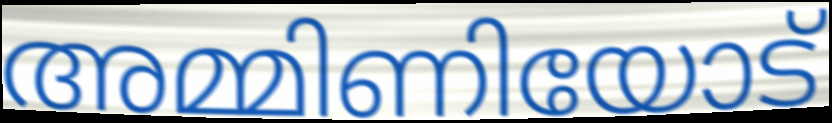
അമ്മിണിയോട്